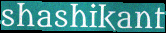
shashikant